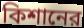
কিশানের